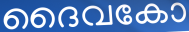
ദൈവകോ